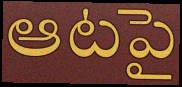
ఆటపై